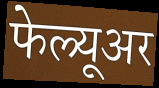
फेल्यूअर